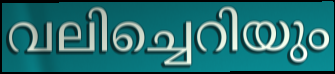
വലിച്ചെറിയും